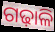
ଗଢ଼ାଳି